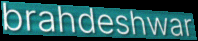
brahdeshwar